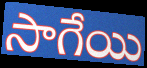
సాగేయి